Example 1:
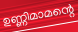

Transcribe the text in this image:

ഉണ്ണിമാമന്റെ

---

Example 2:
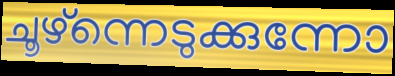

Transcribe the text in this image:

ചൂഴ്ന്നെടുക്കുന്നോ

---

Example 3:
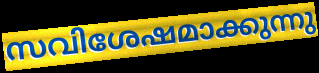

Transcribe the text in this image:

സവിശേഷമാക്കുന്നു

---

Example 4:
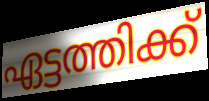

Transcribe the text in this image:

ഏട്ടത്തിക്ക്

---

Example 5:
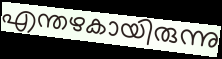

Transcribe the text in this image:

എന്തഴകായിരുന്നു